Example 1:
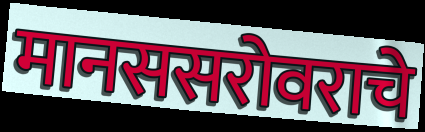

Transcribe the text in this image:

मानससरोवराचे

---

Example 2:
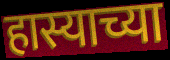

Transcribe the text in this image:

हास्याच्या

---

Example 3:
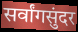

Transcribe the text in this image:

सर्वांगसुंदर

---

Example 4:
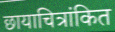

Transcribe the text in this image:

छायाचित्रांकित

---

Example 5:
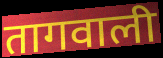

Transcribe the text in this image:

तागवाली